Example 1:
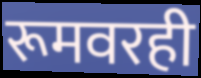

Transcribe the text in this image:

रूमवरही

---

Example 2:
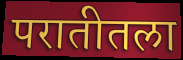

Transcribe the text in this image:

परातीतला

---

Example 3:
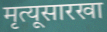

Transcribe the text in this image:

मृत्यूसारखा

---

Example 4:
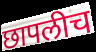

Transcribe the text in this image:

छापलीच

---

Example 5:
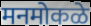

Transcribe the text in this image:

मनमोकळे